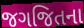
જગજિતના